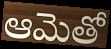
ఆమెతో